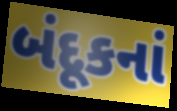
બંદૂકનાં